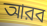
আরব